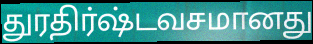
துரதிர்ஷ்டவசமானது